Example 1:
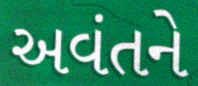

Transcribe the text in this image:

અવંતને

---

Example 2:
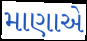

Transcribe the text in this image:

માણાએ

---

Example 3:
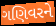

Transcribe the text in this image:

ગણિવરને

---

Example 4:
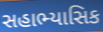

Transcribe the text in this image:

સહાભ્યાસિક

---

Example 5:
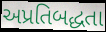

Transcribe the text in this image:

અપ્રતિબદ્ધતા